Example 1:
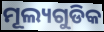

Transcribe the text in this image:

ମୂଲ୍ୟଗୁଡିକ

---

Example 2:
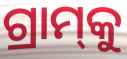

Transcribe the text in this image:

ଗ୍ରାମ୍‌କୁ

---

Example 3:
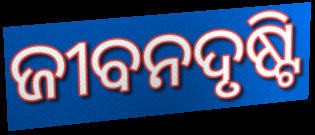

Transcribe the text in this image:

ଜୀବନଦୃଷ୍ଟି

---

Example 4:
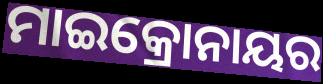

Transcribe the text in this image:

ମାଇକ୍ରୋନାୟର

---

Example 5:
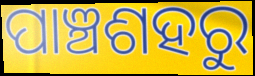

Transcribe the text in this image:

ପାଞ୍ଚଶହରୁ